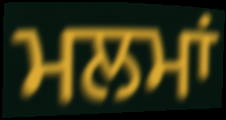
ਮਲਮਾਂ